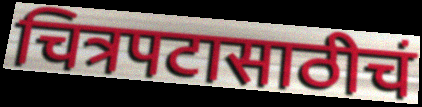
चित्रपटासाठीचं